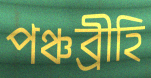
পঞ্চব্রীহি